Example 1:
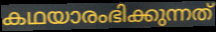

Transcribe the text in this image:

കഥയാരംഭിക്കുന്നത്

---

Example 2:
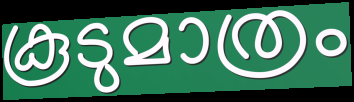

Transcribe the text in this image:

കൂടുമാത്രം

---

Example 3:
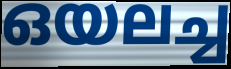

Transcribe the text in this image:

ഒയലച്ച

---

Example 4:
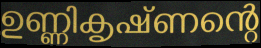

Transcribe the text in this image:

ഉണ്ണികൃഷ്‌ണന്റെ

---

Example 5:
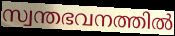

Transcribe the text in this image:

സ്വന്തഭവനത്തിൽ